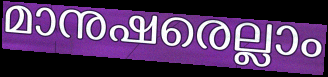
മാനുഷരെല്ലാം